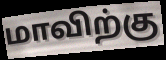
மாவிற்கு